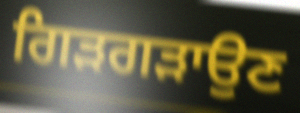
ਗਿੜਗੜਾਉਣ